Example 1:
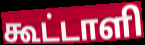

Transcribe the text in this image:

கூட்டாளி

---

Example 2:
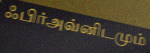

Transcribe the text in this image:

ஃபிர்அவ்னிடமும்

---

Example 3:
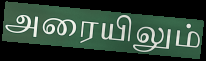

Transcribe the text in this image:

அரையிலும்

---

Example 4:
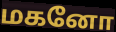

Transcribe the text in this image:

மகனோ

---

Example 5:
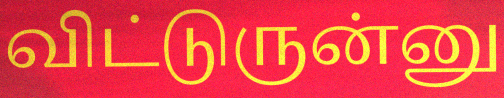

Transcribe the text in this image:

விட்டுருன்னு